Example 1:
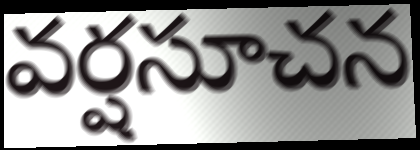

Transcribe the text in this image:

వర్షసూచన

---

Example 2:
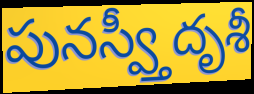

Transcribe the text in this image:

పునస్వ్తీదృశీ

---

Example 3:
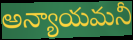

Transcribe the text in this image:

అన్యాయమనీ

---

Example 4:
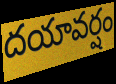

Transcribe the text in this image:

దయావర్షం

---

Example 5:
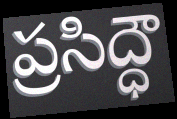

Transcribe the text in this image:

ప్రసిద్ధౌ